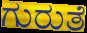
ಗುರುತೆ